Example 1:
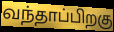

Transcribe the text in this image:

வந்தாப்பிறகு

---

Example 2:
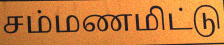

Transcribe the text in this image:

சம்மணமிட்டு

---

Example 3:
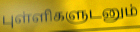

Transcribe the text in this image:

புள்ளிகளுடனும்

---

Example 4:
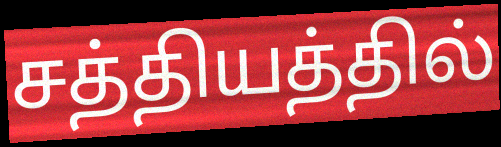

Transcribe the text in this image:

சத்தியத்தில்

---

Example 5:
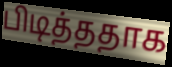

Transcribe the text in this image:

பிடித்ததாக